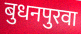
बुधनपुरवा